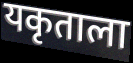
यकृताला